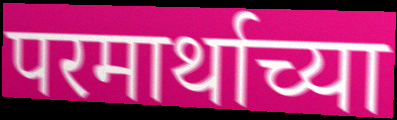
परमार्थाच्या